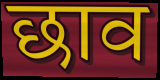
छाव